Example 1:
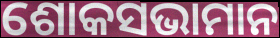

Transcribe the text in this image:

ଶୋକସଭାମାନ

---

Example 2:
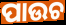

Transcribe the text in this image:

ପାଉଚ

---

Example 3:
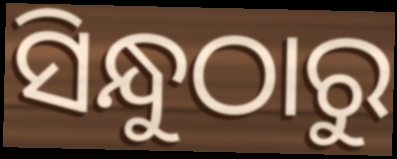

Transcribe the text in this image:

ସିନ୍ଧୁଠାରୁ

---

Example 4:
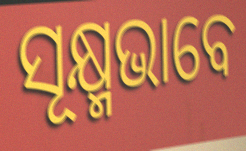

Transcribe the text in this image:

ସୂକ୍ଷ୍ମଭାବେ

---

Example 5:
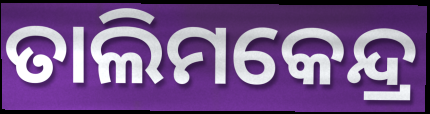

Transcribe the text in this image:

ତାଲିମକେନ୍ଦ୍ର